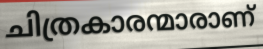
ചിത്രകാരന്മാരാണ്